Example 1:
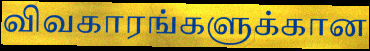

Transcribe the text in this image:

விவகாரங்களுக்கான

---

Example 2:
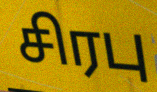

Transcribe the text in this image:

சிரபு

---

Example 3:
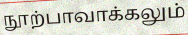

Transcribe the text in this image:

நூற்பாவாக்கலும்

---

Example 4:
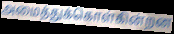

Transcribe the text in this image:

அமைத்துக்கொள்கின்றன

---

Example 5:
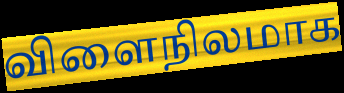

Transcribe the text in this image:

விளைநிலமாக